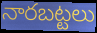
నారబట్టలు